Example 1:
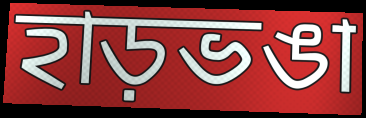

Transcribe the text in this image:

হাড়ভঙা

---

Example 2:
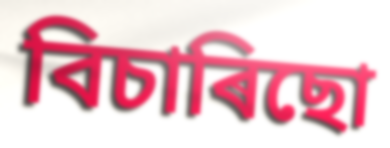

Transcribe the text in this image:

বিচাৰিছো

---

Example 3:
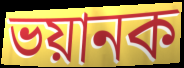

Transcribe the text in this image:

ভয়ানক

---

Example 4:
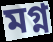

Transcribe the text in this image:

মগ্ন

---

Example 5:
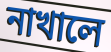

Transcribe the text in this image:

নাখালে